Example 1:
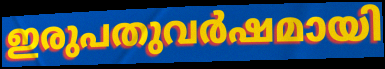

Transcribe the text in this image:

ഇരുപതുവർഷമായി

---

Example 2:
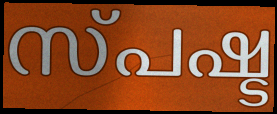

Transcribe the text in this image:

സ്‌പഷ്ട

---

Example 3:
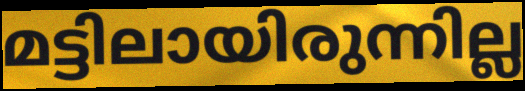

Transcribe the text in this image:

മട്ടിലായിരുന്നില്ല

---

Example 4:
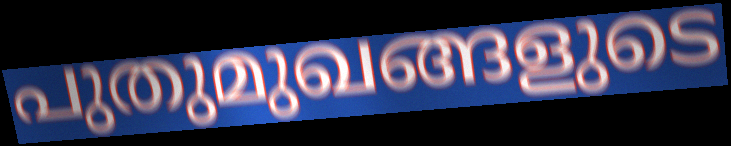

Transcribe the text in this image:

പുതുമുഖങ്ങളുടെ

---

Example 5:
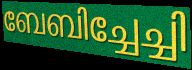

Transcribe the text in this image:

ബേബിച്ചേച്ചി